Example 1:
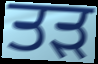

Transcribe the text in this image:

ਤੜ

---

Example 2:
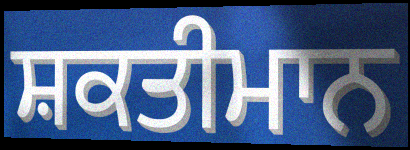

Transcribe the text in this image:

ਸ਼ਕਤੀਮਾਨ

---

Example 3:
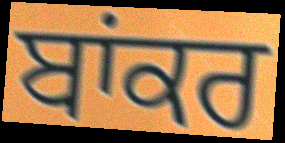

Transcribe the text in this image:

ਬਾਂਕਰ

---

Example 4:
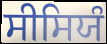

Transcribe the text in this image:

ਸੀਸਿਯੰ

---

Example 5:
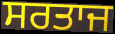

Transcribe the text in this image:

ਸਰਤਾਜ